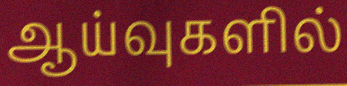
ஆய்வுகளில்